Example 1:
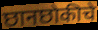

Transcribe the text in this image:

छानछोकीचे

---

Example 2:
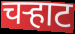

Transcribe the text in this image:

चऱ्हाट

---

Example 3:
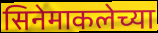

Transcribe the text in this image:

सिनेमाकलेच्या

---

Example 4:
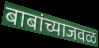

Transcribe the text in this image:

बाबांच्याजवळ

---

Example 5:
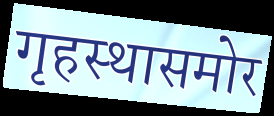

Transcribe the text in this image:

गृहस्थासमोर